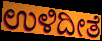
ಉಳಿದೀತೆ